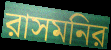
রাসমনির